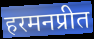
हरमनप्रीत